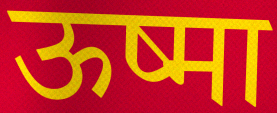
ऊष्मा